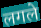
लगले